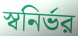
স্বনির্ভর